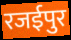
रजईपुर